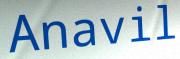
Anavil